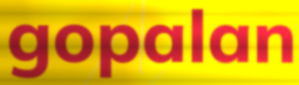
gopalan